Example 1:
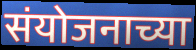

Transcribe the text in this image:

संयोजनाच्या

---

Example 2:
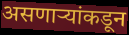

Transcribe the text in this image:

असणाऱ्यांकडून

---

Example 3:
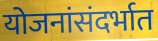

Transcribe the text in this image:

योजनांसंदर्भात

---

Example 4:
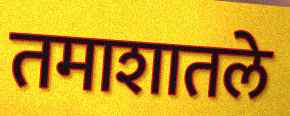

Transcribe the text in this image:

तमाशातले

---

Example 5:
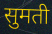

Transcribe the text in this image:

सुमती